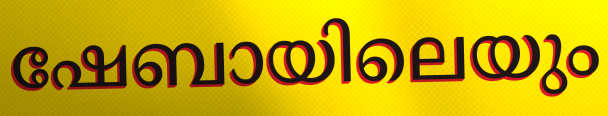
ഷേബായിലെയും